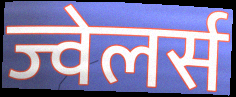
ज्वेलर्स